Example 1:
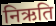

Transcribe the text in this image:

निऋति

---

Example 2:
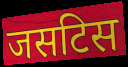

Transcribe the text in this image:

जसटिस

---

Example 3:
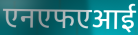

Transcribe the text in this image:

एनएफएआई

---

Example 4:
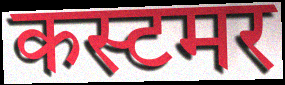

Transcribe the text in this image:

कस्‍टमर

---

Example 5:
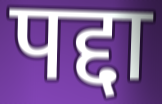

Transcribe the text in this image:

पद्दा